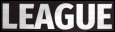
LEAGUE